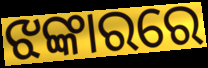
ଝଙ୍କାରରେ